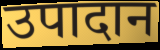
उपादान